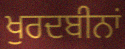
ਖੁਰਦਬੀਨਾਂ